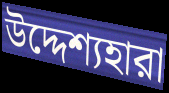
উদ্দেশ্যহারা